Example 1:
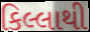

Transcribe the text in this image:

કિલ્લાથી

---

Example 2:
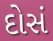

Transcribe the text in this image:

દોસં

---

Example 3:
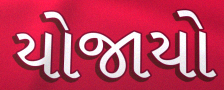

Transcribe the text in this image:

યોજાયો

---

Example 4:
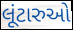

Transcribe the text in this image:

લૂંટારુઓ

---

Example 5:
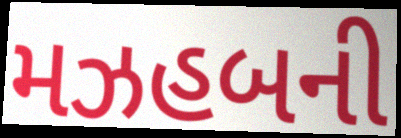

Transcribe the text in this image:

મઝહબની